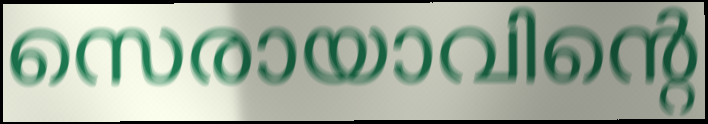
സെരായാവിന്റെ